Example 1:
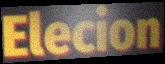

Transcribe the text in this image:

Elecion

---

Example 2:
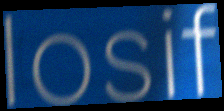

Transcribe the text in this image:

Iosif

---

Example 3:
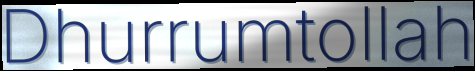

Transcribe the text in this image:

Dhurrumtollah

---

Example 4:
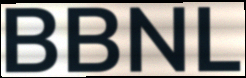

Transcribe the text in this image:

BBNL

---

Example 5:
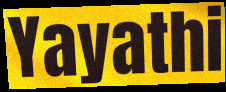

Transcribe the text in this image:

Yayathi